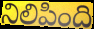
నిలిపింది